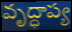
వృద్ధాప్య